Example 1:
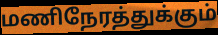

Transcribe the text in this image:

மணிநேரத்துக்கும்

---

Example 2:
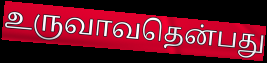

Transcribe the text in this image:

உருவாவதென்பது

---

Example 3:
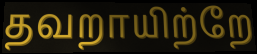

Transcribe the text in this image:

தவறாயிற்றே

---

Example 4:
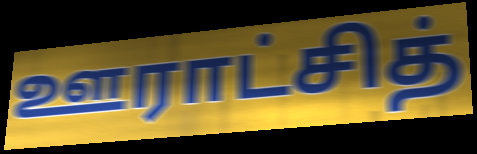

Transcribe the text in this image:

ஊராட்சித்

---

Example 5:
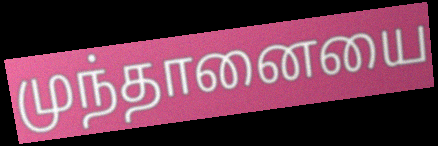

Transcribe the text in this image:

முந்தானையை